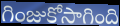
గింజుకోసాగింది